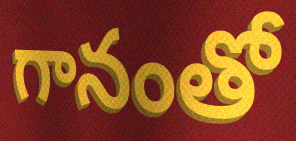
గానంతో